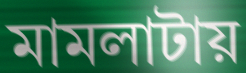
মামলাটায়